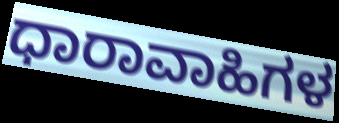
ಧಾರಾವಾಹಿಗಳ